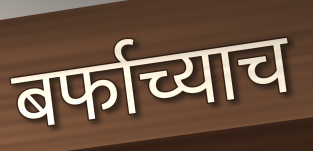
बर्फाच्याच